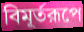
বিমূর্তরূপে